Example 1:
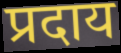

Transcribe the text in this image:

प्रदाय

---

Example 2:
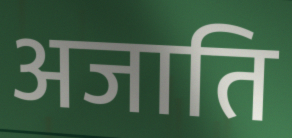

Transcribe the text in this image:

अजाति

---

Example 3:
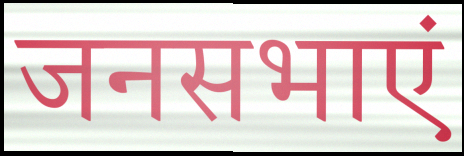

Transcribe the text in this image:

जनसभाएं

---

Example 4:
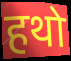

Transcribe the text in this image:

हथो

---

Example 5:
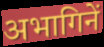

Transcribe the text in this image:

अभागिनें